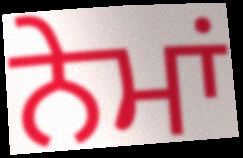
ਨੇਮਾਂ